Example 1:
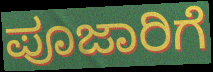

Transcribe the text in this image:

ಪೂಜಾರಿಗೆ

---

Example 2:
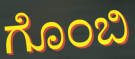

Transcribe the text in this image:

ಗೊಂಬಿ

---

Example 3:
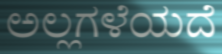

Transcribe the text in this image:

ಅಲ್ಲಗಳೆಯದೆ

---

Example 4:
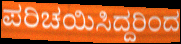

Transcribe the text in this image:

ಪರಿಚಯಿಸಿದ್ದರಿಂದ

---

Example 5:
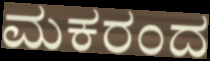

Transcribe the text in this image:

ಮಕರಂದ